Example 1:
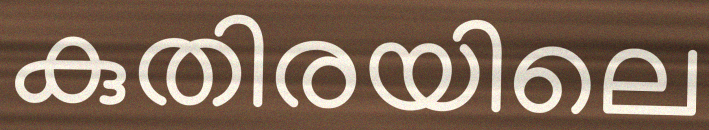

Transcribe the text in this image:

കുതിരയിലെ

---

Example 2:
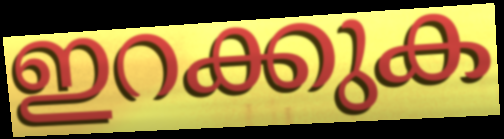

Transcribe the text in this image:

ഇറക്കുക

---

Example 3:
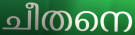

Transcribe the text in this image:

ചീതനെ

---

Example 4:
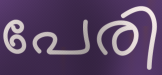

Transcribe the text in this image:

പേരി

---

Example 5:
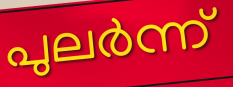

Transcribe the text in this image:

പുലർന്ന്